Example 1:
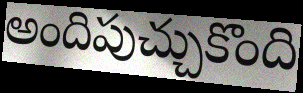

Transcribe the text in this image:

అందిపుచ్చుకొంది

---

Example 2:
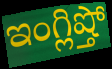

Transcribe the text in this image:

ఇంగ్లిష్తో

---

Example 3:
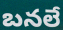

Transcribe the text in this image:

బనలే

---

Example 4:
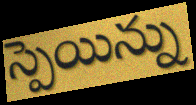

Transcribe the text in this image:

స్పెయిన్ను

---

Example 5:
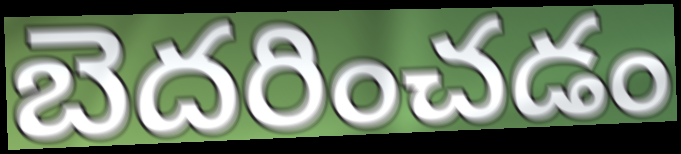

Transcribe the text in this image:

బెదరించడం